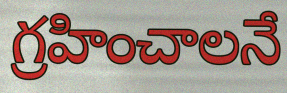
గ్రహించాలనే